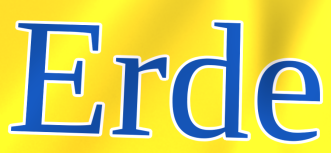
Erde